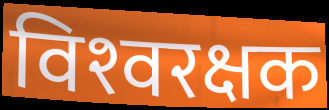
विश्वरक्षक